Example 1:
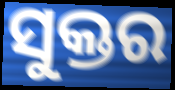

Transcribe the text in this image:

ସୁକ୍ତର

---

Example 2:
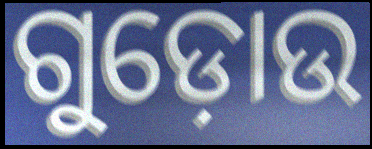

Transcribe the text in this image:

ଗୁଡ଼ୋଉ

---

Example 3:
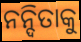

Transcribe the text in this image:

ନନ୍ଦିତାକୁ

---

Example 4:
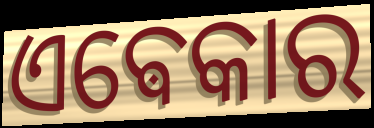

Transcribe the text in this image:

ଏଵେକାର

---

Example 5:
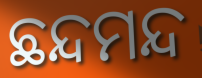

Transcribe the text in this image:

ଛନ୍ଦମନ୍ଦ